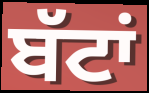
ਬੱਟਾਂ